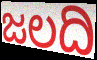
ಜಲದಿ